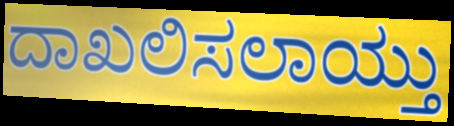
ದಾಖಲಿಸಲಾಯ್ತು